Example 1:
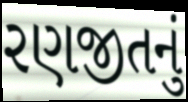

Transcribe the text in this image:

રણજીતનું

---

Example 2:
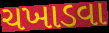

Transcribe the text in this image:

ચખાડવા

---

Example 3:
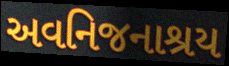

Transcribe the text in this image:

અવનિજનાશ્રય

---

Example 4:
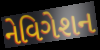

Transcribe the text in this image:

નેવિગેશન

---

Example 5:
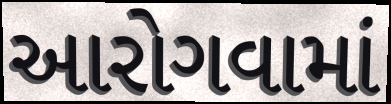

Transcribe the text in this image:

આરોગવામાં